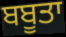
ਬਬੂਤਾ